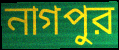
নাগপুর